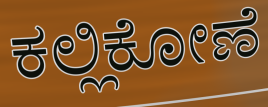
ಕಲ್ಲಿಕೋಣೆ